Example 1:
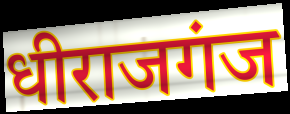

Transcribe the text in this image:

धीराजगंज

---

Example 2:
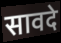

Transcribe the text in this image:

सावदे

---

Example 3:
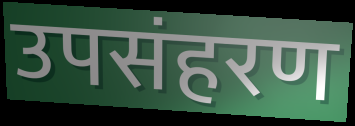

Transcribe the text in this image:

उपसंहरण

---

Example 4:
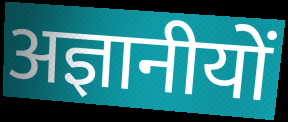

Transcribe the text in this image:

अज्ञानीयों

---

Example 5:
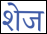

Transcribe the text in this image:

शेज